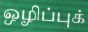
ஒழிப்புக்